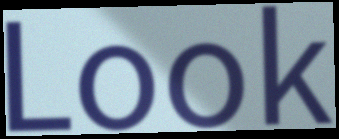
Look